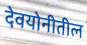
देवयोनीतील